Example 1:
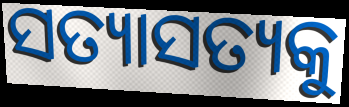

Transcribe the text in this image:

ସତ୍ୟାସତ୍ୟକୁ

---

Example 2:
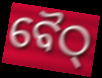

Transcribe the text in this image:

ବୈଠ୍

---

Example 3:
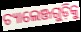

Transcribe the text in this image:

ଚ୍ୟାଲେଞ୍ଜଗୁଡ଼ିକୁ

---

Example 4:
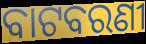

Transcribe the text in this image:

ବାଟବରଣୀ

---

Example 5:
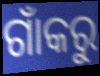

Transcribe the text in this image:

ଗାଁକରୁ